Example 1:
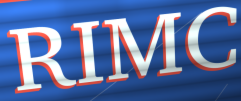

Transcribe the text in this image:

RIMC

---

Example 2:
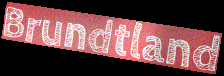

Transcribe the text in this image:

Brundtland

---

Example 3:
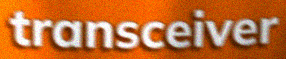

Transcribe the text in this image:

transceiver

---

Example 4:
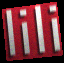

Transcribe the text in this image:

lili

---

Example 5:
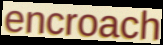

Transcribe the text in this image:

encroach